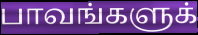
பாவங்களுக்